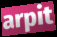
arpit